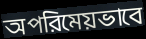
অপরিমেয়ভাবে